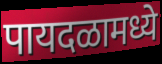
पायदळामध्ये